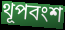
থূপবংশ